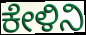
ಕೇಳಿನಿ